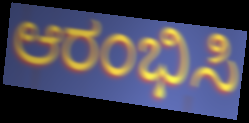
ಆರಂಭಿಸಿ